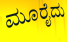
ಮೂರೈದು